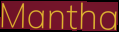
Mantha